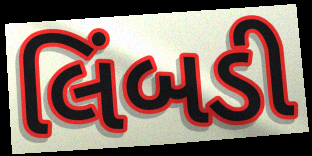
લિંબડી